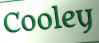
Cooley